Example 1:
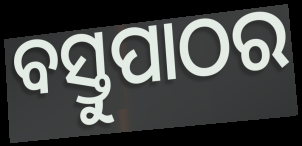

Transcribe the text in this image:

ବସ୍ତୁପାଠର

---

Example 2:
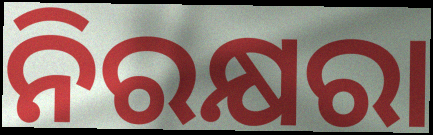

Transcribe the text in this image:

ନିରକ୍ଷରା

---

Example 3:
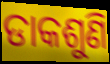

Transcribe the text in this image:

ଡାକଶୁଣି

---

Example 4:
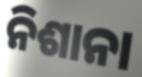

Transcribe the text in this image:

ନିଶାନା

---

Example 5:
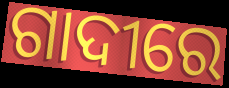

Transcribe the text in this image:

ଗାଦୀରେ